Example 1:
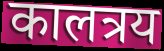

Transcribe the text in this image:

कालत्रय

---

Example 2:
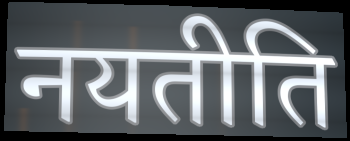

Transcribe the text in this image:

नयतीति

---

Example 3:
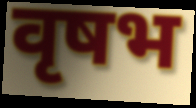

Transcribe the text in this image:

वृषभ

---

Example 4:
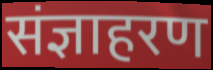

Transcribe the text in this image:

संज्ञाहरण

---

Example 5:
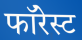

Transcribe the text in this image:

फॉरेस्ट